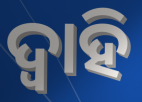
ଦ୍ଵାହି